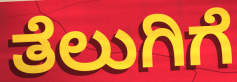
ತೆಲುಗಿಗೆ